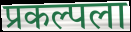
प्रकल्पला